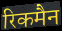
रिकमैन